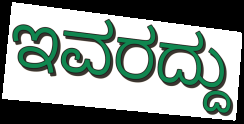
ಇವರದ್ದು